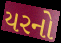
યરનો